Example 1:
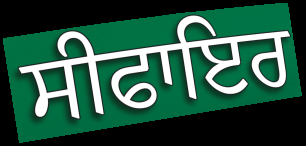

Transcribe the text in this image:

ਸੀਫਾਇਰ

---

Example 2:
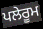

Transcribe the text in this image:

ਪਲੇਰੂਮ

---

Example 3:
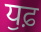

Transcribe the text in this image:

ਧੁਫ਼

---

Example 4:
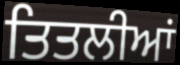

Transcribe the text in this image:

ਤਿਤਲੀਆਂ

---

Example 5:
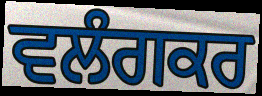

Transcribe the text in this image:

ਵਲੰਗਕਰ